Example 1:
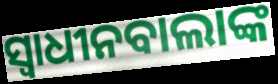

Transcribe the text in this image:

ସ୍ୱାଧୀନବାଲାଙ୍କ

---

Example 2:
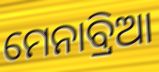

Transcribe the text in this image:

ମେନାବ୍ରିଆ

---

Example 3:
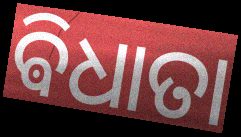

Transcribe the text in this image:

ଵିଧାତା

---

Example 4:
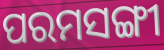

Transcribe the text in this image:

ପରମସଙ୍ଗୀ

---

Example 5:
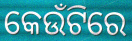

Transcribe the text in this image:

କେଉଁଟିରେ